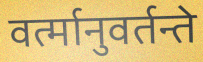
वर्त्मानुवर्तन्ते